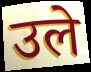
उले